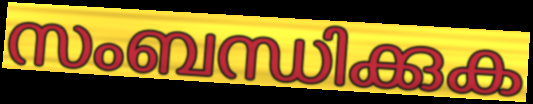
സംബന്ധിക്കുക